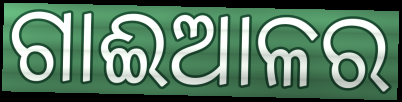
ଗାଈଆଳର